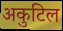
अकुटिल